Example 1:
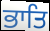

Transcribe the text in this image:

ਭਾਤਿ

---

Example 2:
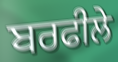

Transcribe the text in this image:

ਬਰਫੀਲੇ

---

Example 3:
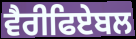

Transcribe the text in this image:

ਵੈਰੀਫਿਏਬਲ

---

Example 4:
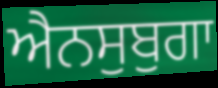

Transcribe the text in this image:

ਐਨਸੁਬੁਗਾ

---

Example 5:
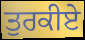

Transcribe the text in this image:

ਤੁਰਕੀਏ